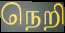
நெறி